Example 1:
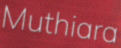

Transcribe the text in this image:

Muthiara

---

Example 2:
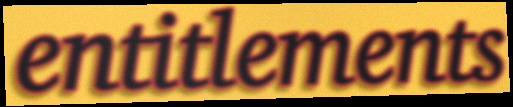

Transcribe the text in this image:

entitlements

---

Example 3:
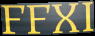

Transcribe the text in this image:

FFXI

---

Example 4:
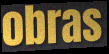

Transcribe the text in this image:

obras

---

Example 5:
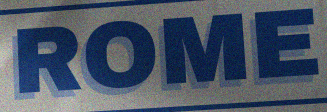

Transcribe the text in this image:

ROME